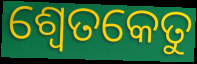
ଶ୍ୱେତକେତୁ